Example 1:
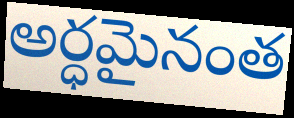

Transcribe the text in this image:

అర్ధమైనంత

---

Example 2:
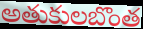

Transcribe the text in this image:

అతుకులబొంత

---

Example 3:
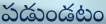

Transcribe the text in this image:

పడుండటం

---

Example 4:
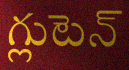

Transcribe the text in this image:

గ్లుటెన్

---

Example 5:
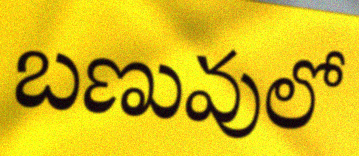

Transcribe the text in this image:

బణువులో